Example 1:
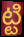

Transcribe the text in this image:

ట్టి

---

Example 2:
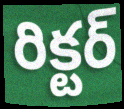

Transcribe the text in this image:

రిక్టర్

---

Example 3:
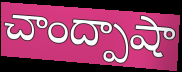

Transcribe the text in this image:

చాంద్పాషా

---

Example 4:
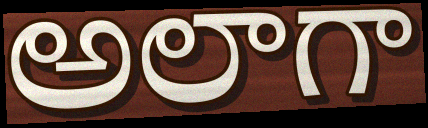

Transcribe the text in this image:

అలాగా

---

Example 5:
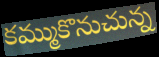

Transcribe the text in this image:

కమ్ముకొనుచున్న